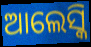
ଆଲେସ୍କି